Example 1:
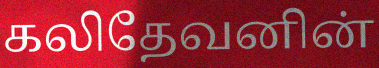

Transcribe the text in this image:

கலிதேவனின்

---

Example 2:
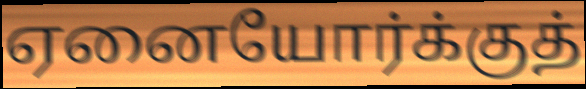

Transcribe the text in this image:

ஏனையோர்க்குத்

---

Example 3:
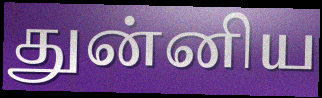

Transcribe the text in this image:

துன்னிய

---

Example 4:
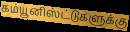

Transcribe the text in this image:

கம்யூனிஸ்ட்டுகளுக்கு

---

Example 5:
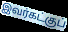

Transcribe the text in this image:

இவர்கட்குப்